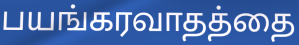
பயங்கரவாதத்தை